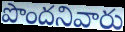
పొందనివారు